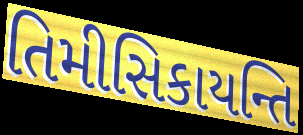
તિમીસિકાયન્તિ